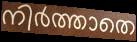
നിർത്താതെ